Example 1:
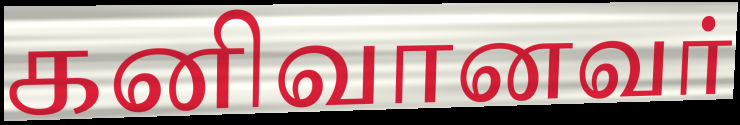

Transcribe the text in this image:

கனிவானவர்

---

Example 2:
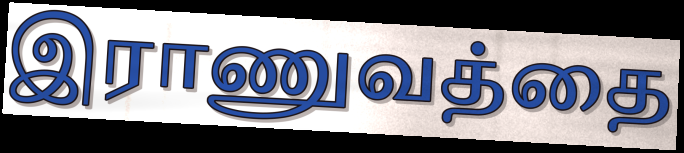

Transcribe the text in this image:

இராணுவத்தை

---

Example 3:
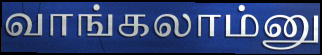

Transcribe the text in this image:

வாங்கலாம்னு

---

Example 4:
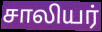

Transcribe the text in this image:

சாலியர்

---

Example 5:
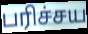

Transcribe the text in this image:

பரிச்சய